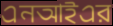
এনআইএর